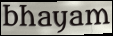
bhayam